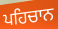
ਪਹਿਚਾਨ